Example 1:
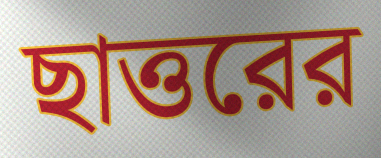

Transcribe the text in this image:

ছাত্তরের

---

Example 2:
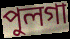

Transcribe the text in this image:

পুলগা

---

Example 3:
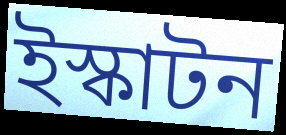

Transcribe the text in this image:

ইস্কাটন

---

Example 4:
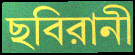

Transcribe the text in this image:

ছবিরানী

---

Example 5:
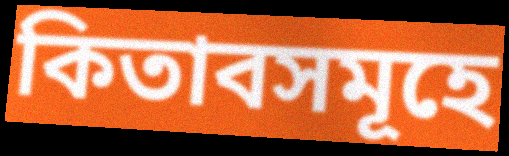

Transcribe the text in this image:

কিতাবসমূহে